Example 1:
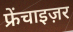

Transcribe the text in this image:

फ्रेंचाइज़र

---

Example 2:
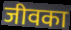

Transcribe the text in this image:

जीवका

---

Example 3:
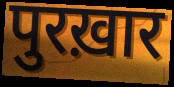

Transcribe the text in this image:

पुरख़ार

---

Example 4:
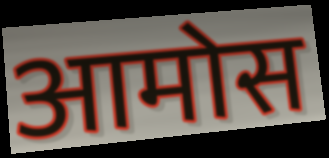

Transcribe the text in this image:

आमोस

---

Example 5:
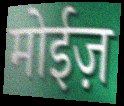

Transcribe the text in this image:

मोईज़